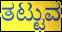
ತಟ್ಟುವ